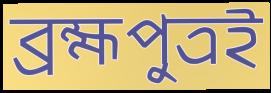
ব্রহ্মপুত্রই